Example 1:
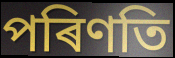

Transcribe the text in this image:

পৰিণতি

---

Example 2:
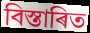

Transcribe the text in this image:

বিস্তাৰিত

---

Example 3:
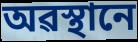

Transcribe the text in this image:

অৱস্থানে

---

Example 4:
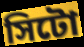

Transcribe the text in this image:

সিটো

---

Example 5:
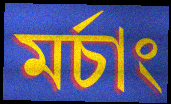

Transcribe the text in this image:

মৰ্চাং